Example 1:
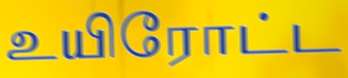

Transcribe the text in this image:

உயிரோட்ட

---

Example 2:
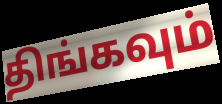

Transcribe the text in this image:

திங்கவும்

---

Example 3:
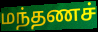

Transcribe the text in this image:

மந்தணச்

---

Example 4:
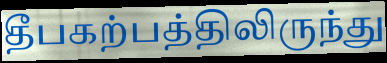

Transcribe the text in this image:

தீபகற்பத்திலிருந்து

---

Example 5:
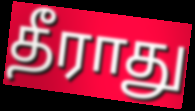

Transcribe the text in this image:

தீராது